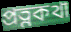
প্রত্নকথা